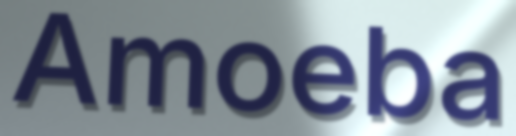
Amoeba